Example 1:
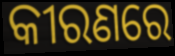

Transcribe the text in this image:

କୀରଣରେ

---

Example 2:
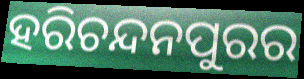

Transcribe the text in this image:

ହରିଚନ୍ଦନପୁରର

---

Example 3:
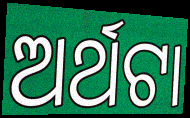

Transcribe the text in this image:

ଅର୍ଥଟା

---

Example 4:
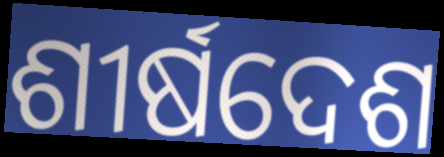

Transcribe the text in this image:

ଶୀର୍ଷଦେଶ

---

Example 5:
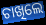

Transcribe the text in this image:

ଚାଖିଲେ